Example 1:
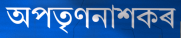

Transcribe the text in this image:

অপতৃণনাশকৰ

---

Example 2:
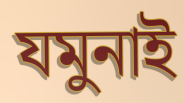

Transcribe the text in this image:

যমুনাই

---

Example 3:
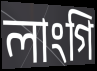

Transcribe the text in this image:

লাংগি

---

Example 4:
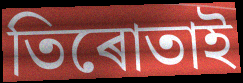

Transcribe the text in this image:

তিৰোতাই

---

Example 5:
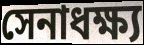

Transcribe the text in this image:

সেনাধক্ষ্য